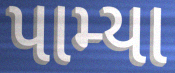
પામ્યા